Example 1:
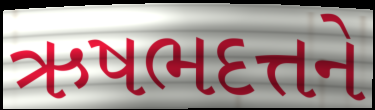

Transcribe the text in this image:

ઋષભદત્તને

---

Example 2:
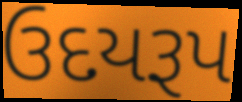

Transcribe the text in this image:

ઉદયરૂપ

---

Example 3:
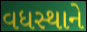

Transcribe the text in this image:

વધસ્થાને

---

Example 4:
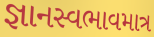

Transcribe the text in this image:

જ્ઞાનસ્વભાવમાત્ર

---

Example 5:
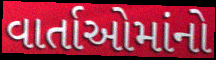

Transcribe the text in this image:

વાર્તાઓમાંનો